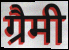
ग्रैमी